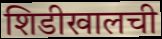
शिडीखालची